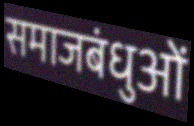
समाजबंधुओं